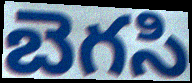
బెగసి